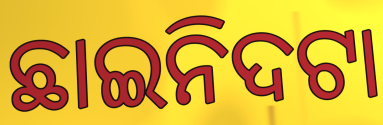
ଛାଇନିଦଟା